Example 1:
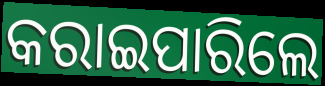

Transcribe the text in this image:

କରାଇପାରିଲେ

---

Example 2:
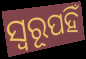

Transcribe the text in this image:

ସ୍ୱରୂପହିଁ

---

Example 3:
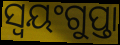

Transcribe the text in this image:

ସ୍ୱୟଂଗୁପ୍ତା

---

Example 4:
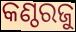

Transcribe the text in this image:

କଣ୍ଠରଜୁ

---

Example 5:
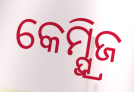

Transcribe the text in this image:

କେମ୍ପ୍ୱ୍ରିଜ